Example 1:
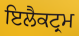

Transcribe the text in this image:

ਇਲੈਕਟ੍ਰਮ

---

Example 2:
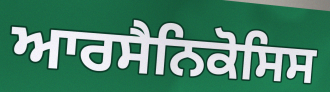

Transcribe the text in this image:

ਆਰਸੈਨਿਕੋਸਿਸ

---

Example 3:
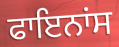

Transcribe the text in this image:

ਫਾਇਨਾਂਸ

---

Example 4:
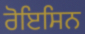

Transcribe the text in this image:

ਰੋਇਸਿਨ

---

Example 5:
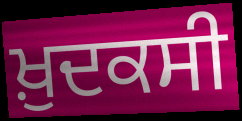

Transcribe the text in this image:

ਖ਼ੁਦਕਸੀ